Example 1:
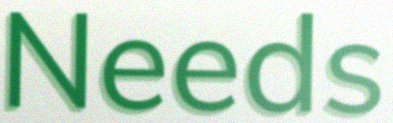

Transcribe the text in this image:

Needs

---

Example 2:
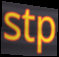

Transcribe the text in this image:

stp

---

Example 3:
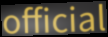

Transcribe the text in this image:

official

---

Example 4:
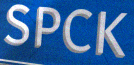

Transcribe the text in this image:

SPCK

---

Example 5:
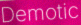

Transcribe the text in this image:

Demotic